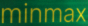
minmax